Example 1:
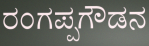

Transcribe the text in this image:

ರಂಗಪ್ಪಗೌಡನ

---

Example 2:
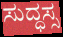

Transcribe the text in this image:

ಸುದ್ಧಸ್ಸ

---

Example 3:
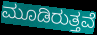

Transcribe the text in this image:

ಮೂಡಿರುತ್ತವೆ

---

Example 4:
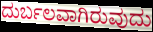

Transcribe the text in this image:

ದುರ್ಬಲವಾಗಿರುವುದು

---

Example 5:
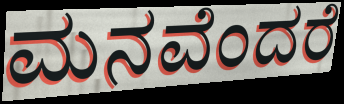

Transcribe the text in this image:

ಮನವೆಂದರೆ